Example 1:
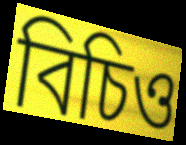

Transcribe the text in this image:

বিচিও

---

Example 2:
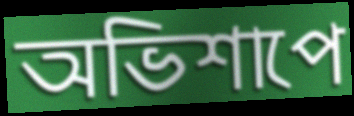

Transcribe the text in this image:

অভিশাপে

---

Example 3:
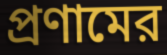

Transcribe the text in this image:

প্রণামের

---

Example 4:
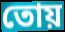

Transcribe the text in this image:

তোয়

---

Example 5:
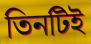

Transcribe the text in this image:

তিনটিই